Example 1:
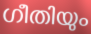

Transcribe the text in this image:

ഗീതിയും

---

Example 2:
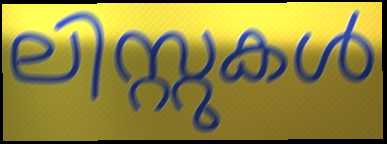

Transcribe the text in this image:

ലിസ്റ്റുകൾ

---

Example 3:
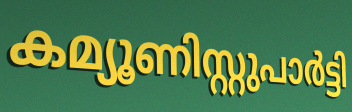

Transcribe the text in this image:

കമ്യൂണിസ്റ്റുപാർട്ടി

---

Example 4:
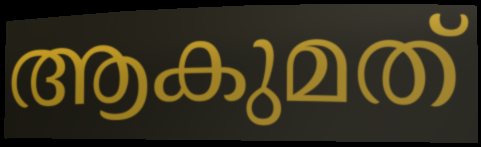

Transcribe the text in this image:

ആകുമത്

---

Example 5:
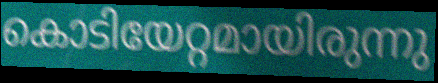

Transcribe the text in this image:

കൊടിയേറ്റമായിരുന്നു